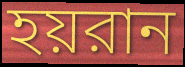
হয়রান